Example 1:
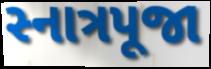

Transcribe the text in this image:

સ્નાત્રપૂજા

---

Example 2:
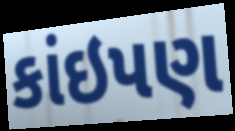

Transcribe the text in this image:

કાંઇપણ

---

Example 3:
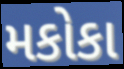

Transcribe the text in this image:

મકોકા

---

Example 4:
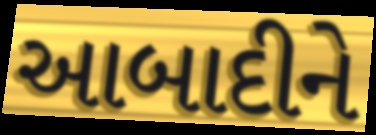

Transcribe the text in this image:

આબાદીને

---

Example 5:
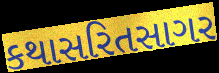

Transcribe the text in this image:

કથાસરિતસાગર